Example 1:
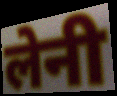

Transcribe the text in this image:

लेनी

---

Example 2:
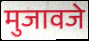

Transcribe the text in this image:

मुजावजे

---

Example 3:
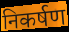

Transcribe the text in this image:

निकर्षण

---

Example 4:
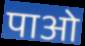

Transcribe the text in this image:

पाओ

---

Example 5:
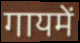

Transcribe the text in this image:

गायमें